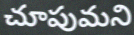
చూపుమని